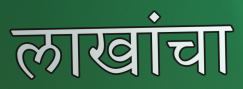
लाखांचा